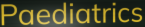
Paediatrics